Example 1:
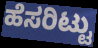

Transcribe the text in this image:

ಹೆಸರಿಟ್ಟು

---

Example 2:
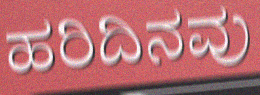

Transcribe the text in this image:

ಹರಿದಿನವು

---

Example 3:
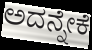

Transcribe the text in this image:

ಅದನ್ನೇಕೆ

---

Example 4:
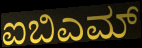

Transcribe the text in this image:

ಐಬಿಎಮ್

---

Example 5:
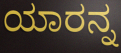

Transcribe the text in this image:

ಯಾರನ್ನ